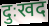
दुःखद